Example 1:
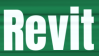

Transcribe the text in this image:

Revit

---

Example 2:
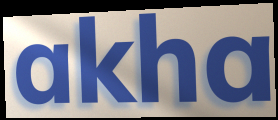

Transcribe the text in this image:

akha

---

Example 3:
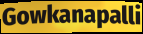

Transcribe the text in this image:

Gowkanapalli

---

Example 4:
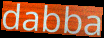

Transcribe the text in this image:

dabba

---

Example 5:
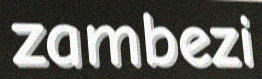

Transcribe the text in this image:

zambezi